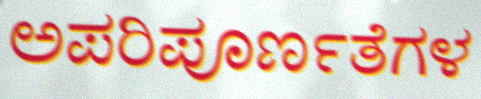
ಅಪರಿಪೂರ್ಣತೆಗಳ